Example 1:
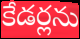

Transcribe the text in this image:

కేడర్లను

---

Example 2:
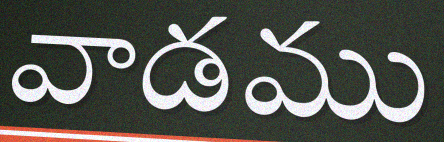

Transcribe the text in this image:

వాడము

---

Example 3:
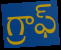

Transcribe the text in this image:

గ్రాఫ్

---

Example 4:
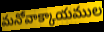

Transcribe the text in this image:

మనోవాక్కాయముల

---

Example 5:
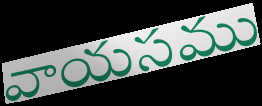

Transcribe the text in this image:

వాయసము